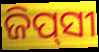
ଜିପ୍‍ସୀ